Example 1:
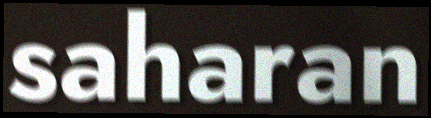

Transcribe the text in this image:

saharan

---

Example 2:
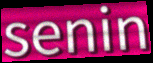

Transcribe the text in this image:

senin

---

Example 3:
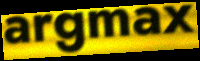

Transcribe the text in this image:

argmax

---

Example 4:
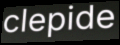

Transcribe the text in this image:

clepide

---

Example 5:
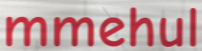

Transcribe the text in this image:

mmehul